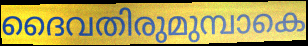
ദൈവതിരുമുമ്പാകെ